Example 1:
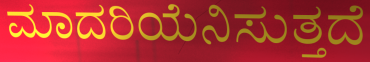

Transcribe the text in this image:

ಮಾದರಿಯೆನಿಸುತ್ತದೆ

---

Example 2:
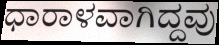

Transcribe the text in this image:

ಧಾರಾಳವಾಗಿದ್ದವು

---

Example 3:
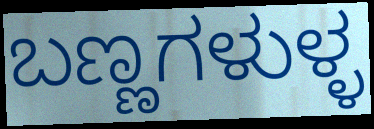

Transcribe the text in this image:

ಬಣ್ಣಗಳುಳ್ಳ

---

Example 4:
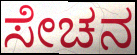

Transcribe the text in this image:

ಸೇಚನ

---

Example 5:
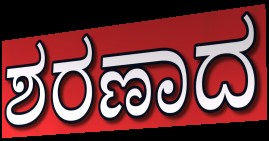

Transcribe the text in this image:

ಶರಣಾದ